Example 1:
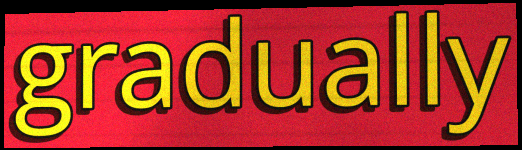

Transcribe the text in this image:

gradually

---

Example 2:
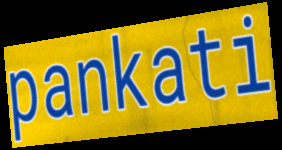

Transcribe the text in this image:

pankati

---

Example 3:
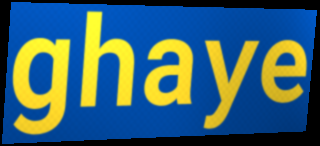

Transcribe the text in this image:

ghaye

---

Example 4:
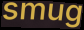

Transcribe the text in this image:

smug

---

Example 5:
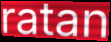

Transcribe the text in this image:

ratan